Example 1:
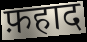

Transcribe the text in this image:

फ़हाद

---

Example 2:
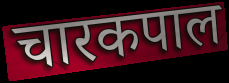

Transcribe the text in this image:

चारकपाल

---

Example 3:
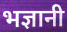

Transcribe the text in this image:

भज्ञानी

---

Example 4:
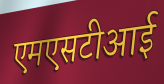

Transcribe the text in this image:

एमएसटीआई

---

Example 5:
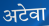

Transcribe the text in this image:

अटेवा